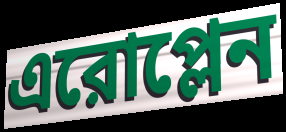
এরোপ্লেন